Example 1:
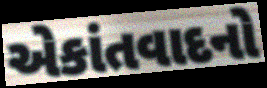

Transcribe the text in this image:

એકાંતવાદનો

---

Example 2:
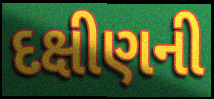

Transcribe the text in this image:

દક્ષીણની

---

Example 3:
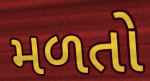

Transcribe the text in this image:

મળતો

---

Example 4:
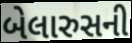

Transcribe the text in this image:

બેલારુસની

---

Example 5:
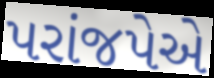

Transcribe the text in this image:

પરાંજપેએ